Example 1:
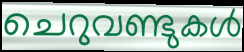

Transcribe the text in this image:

ചെറുവണ്ടുകൾ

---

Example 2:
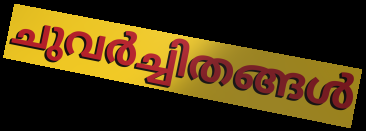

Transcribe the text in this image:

ചുവർച്ചിതങ്ങൾ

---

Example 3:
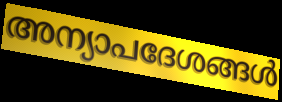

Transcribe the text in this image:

അന്യാപദേശങ്ങൾ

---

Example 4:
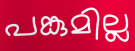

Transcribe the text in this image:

പങ്കുമില്ല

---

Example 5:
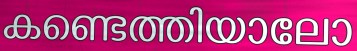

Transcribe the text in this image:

കണ്ടെത്തിയാലോ